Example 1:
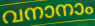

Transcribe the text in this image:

വനാനാം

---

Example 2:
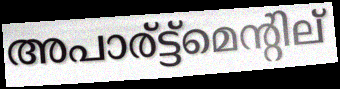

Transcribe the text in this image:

അപാര്ട്ട്മെന്റില്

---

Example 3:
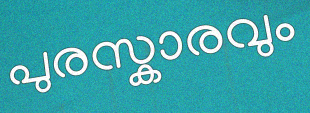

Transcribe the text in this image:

പുരസ്കാരവും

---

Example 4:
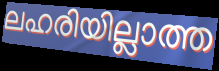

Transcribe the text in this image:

ലഹരിയില്ലാത്ത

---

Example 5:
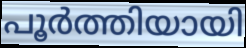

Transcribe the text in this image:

പൂർത്തിയായി